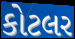
કોટલર